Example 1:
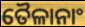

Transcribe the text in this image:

ତୈଳାନାଂ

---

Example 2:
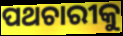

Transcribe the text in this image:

ପଥଚାରୀକୁ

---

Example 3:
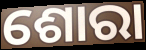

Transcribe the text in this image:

ଶୋରା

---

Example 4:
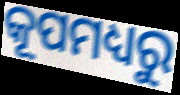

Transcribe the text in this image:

କୂପମଧ୍ୟରୁ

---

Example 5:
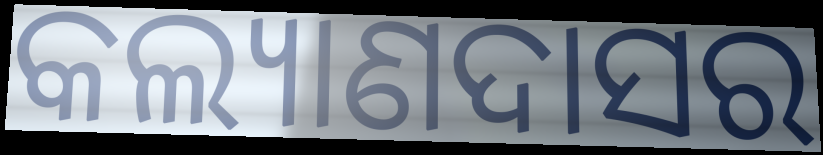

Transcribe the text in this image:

କଲ୍ୟାଣଦାସର